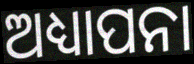
ଅଧ୍ୟାପନା